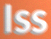
Iss